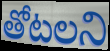
తోటలని